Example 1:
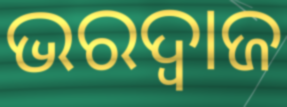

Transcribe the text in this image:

ଭରଦ୍ଵାଜ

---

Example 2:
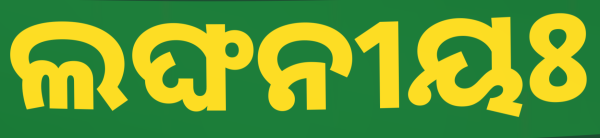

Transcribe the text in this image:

ଲଙ୍ଘନୀୟଃ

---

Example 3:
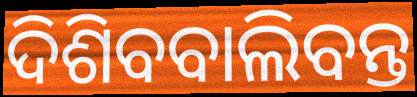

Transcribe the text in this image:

ଦିଶିବବାଲିବନ୍ତ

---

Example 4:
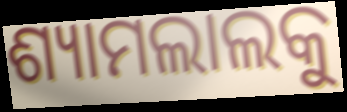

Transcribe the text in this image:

ଶ୍ୟାମଲାଲକୁ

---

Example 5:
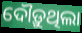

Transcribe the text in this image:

ଦୌଡ଼ୁଥିଲା